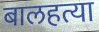
बालहत्या